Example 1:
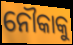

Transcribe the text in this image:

ନୌକାକୁ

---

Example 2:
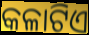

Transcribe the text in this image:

କଳାଟିଏ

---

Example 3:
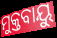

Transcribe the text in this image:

ମୁକ୍ତବାୟୁ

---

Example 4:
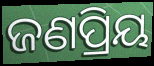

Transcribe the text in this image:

ଜଣପ୍ରିୟ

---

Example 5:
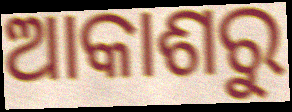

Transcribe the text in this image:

ଆକାଶରୁ